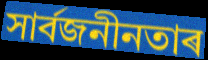
সাৰ্বজনীনতাৰ